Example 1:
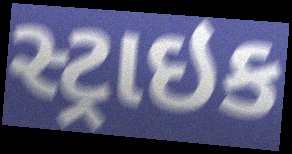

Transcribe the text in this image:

સ્ટ્રાઇક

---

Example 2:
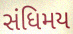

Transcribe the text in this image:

સંધિમય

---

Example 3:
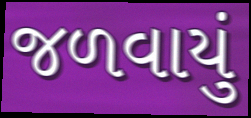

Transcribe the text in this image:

જળવાયું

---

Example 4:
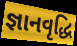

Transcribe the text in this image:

જ્ઞાનવૃદ્ધિ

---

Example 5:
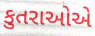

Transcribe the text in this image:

કુતરાઓએ